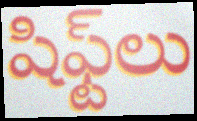
షిఫ్ట్‌లు